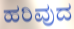
ಹರಿವುದ